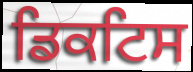
ਡਿਕਟਿਸ